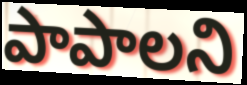
పాపాలని